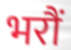
भरौं